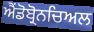
ਐਂਡੋਬ੍ਰੋਨਚਿਅਲ